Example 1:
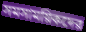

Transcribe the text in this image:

সমসাময়িকদের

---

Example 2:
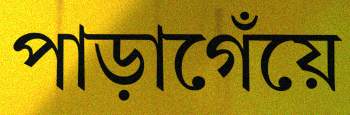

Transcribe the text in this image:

পাড়াগেঁয়ে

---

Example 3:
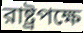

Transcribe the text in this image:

রাষ্ট্রপক্ষে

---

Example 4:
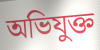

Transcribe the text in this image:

অভিযুক্ত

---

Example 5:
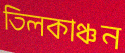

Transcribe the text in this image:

তিলকাঞ্চন